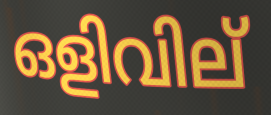
ഒളിവില്